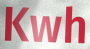
Kwh